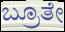
ಬ್ರೂತೇ